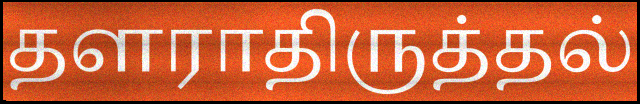
தளராதிருத்தல்